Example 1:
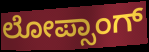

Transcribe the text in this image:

ಲೋಪ್ಸಾಂಗ್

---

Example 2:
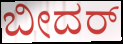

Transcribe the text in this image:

ಬೀದರ್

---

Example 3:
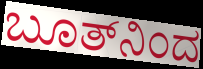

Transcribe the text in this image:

ಬೂತ್‌ನಿಂದ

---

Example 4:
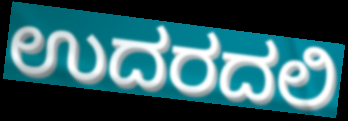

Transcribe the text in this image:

ಉದರದಲಿ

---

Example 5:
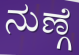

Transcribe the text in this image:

ನುಣ್ಗೆ